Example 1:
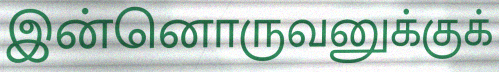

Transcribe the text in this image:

இன்னொருவனுக்குக்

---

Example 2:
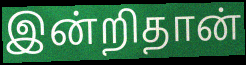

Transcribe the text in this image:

இன்றிதான்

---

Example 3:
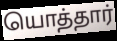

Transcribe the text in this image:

யொத்தார்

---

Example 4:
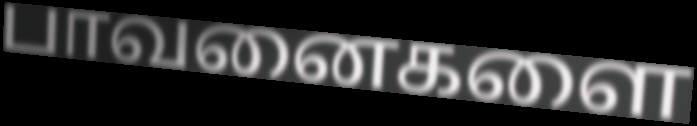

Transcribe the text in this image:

பாவனைகளை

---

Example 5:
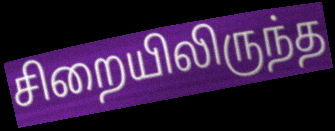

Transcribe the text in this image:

சிறையிலிருந்த